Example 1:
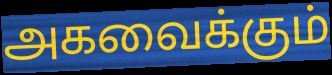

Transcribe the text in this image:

அகவைக்கும்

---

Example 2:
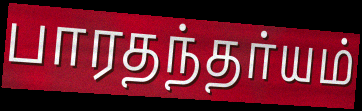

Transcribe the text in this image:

பாரதந்தர்யம்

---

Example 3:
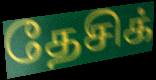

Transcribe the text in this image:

தேசிக்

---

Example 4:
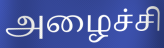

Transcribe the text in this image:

அழைச்சி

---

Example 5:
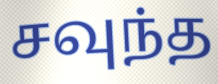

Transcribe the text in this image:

சவுந்த